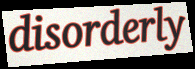
disorderly